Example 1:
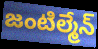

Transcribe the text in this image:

జంటిల్మేన్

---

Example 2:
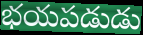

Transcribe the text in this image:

భయపడుడు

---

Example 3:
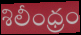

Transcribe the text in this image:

శిలీంధ్రం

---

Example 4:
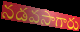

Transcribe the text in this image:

నడవసాగారు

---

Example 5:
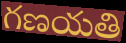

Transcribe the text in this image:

గణయతి